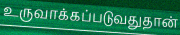
உருவாக்கப்படுவதுதான்